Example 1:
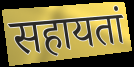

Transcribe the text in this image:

सहायतां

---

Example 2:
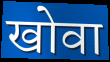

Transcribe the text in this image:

खोवा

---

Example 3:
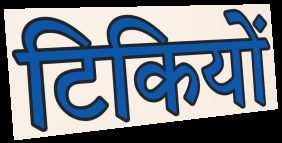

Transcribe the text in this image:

टिकियों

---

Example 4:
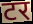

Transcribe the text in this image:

टर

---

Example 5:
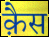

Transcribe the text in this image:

क़ैस